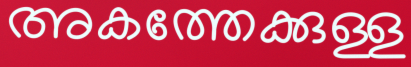
അകത്തേക്കുള്ള